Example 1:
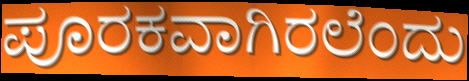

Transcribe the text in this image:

ಪೂರಕವಾಗಿರಲೆಂದು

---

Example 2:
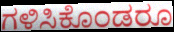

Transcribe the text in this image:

ಗಳಿಸಿಕೊಂಡರೂ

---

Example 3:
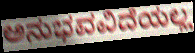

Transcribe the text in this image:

ಅನುಭವವಿದೆಯಲ್ಲ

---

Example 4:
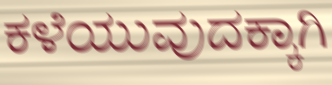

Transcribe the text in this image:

ಕಳೆಯುವುದಕ್ಕಾಗಿ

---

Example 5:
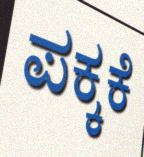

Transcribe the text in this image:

ಪಕ್ಕಕೆ